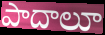
పాదాలూ